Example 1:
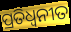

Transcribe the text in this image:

ପ୍ରତିଧ୍ବନୀତ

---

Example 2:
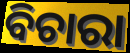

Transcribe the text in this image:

ବିଚାରା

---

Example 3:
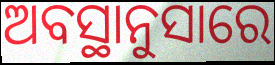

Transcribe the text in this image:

ଅବସ୍ଥାନୁସାରେ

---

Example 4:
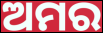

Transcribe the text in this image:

ଅମର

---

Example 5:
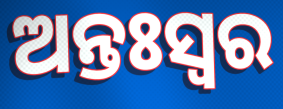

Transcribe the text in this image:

ଅନ୍ତଃସ୍ଵର